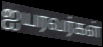
ஐயரவர்கள்